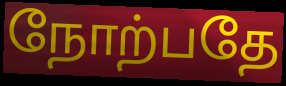
நோற்பதே